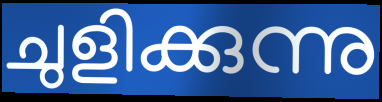
ചുളിക്കുന്നു